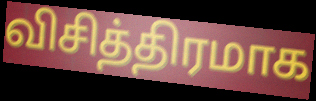
விசித்திரமாக